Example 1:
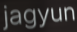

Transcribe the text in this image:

jagyun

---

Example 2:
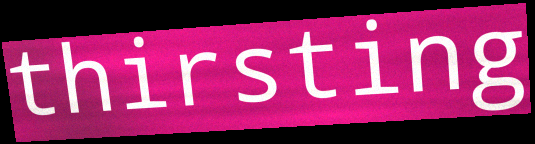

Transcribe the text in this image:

thirsting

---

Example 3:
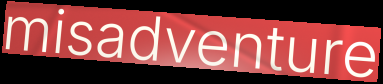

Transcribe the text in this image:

misadventure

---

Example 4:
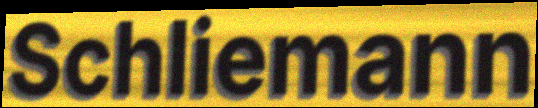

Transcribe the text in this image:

Schliemann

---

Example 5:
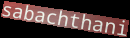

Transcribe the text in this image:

sabachthani